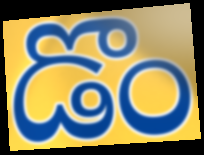
డొం